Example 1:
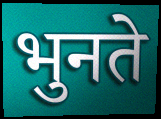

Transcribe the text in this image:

भुनते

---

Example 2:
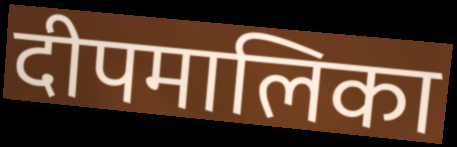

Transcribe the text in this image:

दीपमालिका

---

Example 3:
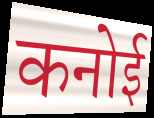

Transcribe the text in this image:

कनोई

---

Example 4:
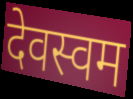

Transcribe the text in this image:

देवस्वम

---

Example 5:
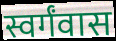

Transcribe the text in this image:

स्वर्गंवास